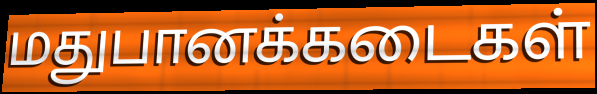
மதுபானக்கடைகள்